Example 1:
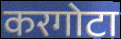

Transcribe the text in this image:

करगोटा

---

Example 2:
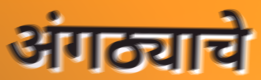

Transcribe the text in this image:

अंगठ्याचे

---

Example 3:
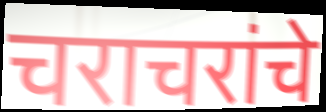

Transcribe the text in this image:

चराचरांचे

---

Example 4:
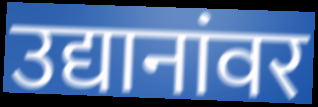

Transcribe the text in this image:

उद्यानांवर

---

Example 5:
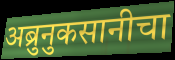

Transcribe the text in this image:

अब्रुनुकसानीचा